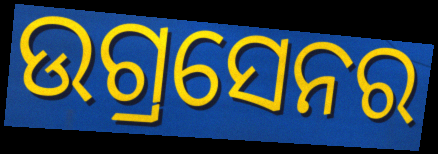
ଉଗ୍ରସେନର